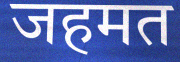
जहमत